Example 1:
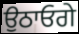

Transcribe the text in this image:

ਉਠਾਓਗੇ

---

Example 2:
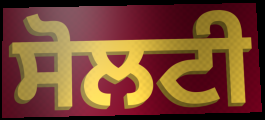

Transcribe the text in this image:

ਸੋਲਟੀ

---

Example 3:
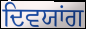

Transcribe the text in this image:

ਦਿਵਯਾਂਗ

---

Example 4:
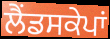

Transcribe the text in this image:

ਲੈਂਡਸਕੇਪਾਂ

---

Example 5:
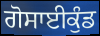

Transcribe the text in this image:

ਗੋਸਾਈਕੁੰਡ